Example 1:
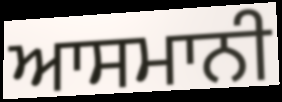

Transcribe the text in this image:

ਆਸਮਾਨੀ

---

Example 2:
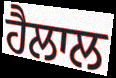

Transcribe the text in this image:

ਹੈਲਾਲ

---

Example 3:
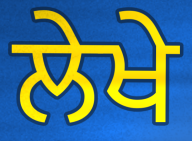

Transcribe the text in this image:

ਲੇਖੇ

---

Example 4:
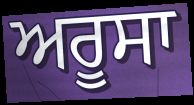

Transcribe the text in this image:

ਅਰੂਸਾ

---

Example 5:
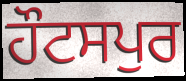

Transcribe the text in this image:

ਹੌਟਸਪੁਰ